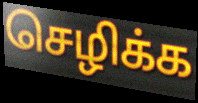
செழிக்க